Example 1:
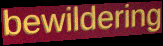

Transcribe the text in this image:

bewildering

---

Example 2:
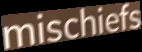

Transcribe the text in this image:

mischiefs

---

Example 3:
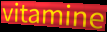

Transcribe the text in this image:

vitamine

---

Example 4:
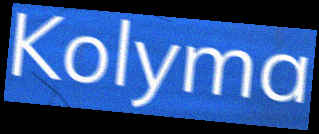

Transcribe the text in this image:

Kolyma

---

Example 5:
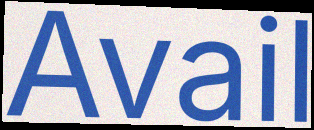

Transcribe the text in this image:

Avail